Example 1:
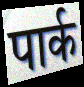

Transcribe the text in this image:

पार्क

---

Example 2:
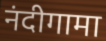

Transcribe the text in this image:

नंदीगामा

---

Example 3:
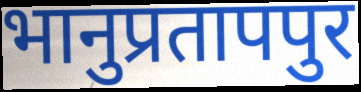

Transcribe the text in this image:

भानुप्रतापपुर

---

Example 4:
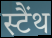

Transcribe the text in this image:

स्टैंथ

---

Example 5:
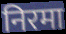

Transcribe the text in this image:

निरमा